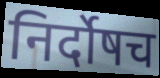
निर्दोषच